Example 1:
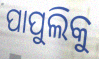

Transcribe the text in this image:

ପାପୁଲିକୁ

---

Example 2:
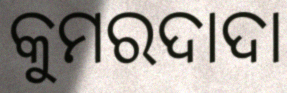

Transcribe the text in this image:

କୁମରଦାଦା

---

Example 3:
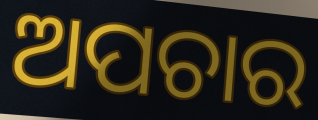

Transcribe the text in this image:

ଅପଚାର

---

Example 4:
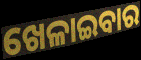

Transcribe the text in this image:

ଖେଳାଇବାର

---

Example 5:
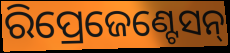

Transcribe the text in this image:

ରିପ୍ରେଜେଣ୍ଟେସନ୍